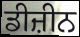
ਡੀਜ਼ੀਨ